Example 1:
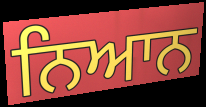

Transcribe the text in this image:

ਨਿਆਨ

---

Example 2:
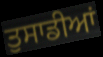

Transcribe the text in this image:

ਤੁਸਾਡੀਆਂ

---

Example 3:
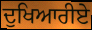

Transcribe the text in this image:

ਦੁਖਿਆਰੀਏ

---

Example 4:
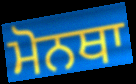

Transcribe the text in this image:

ਮੋਨਥਾ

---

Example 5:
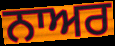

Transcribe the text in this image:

ਨਾਅਰ